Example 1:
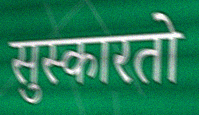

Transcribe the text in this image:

सुस्कारतो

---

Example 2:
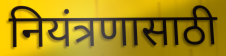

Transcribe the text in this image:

नियंत्रणासाठी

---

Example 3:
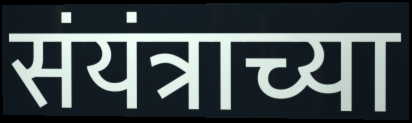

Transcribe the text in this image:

संयंत्राच्या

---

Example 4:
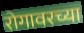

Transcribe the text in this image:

रोगावरच्या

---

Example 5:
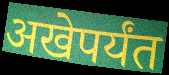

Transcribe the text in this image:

अखेपर्यंत